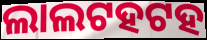
ଲାଲଟହଟହ